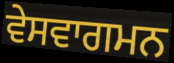
ਵੇਸਵਾਗਮਨ